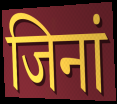
जिनां